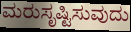
ಮರುಸೃಷ್ಟಿಸುವುದು